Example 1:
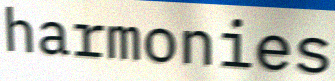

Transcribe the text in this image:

harmonies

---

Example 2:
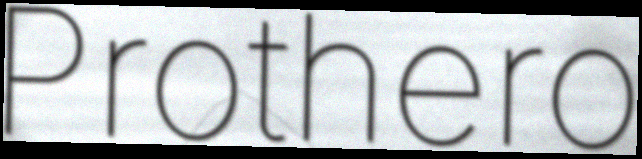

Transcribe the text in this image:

Prothero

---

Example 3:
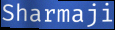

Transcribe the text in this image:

Sharmaji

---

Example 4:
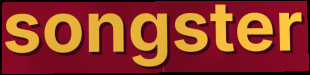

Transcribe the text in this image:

songster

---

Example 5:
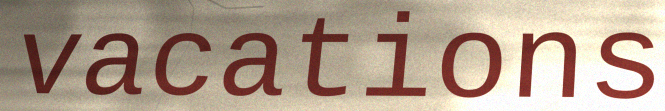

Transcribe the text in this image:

vacations